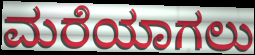
ಮರೆಯಾಗಲು